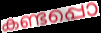
കണ്ടപ്പൊ